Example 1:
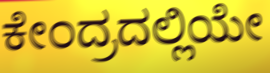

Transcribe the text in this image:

ಕೇಂದ್ರದಲ್ಲಿಯೇ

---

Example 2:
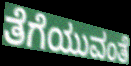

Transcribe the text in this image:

ತೆಗೆಯುವಂತೆ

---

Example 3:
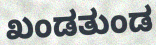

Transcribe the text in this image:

ಖಂಡತುಂಡ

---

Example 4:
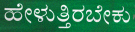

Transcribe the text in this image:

ಹೇಳುತ್ತಿರಬೇಕು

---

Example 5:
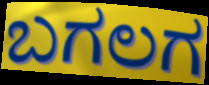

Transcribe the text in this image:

ಬಗಲಗ